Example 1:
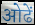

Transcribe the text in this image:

ओढें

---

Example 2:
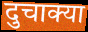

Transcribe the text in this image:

दुचाक्या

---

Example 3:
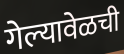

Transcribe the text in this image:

गेल्यावेळची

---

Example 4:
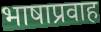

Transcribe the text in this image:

भाषाप्रवाह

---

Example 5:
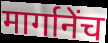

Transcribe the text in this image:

मार्गानेंच